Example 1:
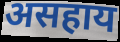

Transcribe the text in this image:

असहाय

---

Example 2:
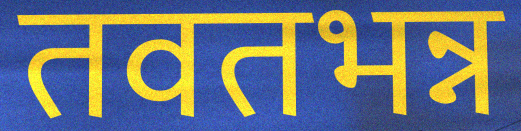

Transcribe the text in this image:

तवतभन्न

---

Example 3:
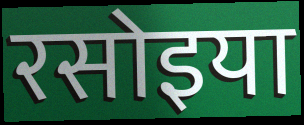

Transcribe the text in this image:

रसोइया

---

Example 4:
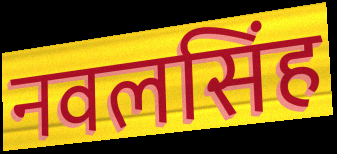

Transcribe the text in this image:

नवलसिंह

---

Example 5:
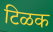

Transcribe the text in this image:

टिळक